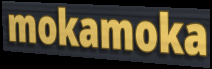
mokamoka